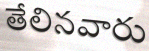
తేలినవారు